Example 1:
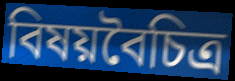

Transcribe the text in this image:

বিষয়বৈচিত্র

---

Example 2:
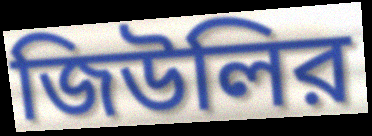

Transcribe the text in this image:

জিউলির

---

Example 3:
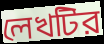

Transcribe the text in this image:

লেখটির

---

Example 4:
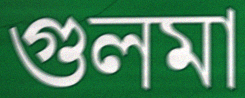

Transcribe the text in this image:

গুলমা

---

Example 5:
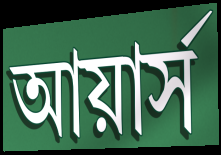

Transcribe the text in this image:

আয়ার্স